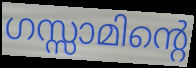
ഗസ്സാമിന്റെ